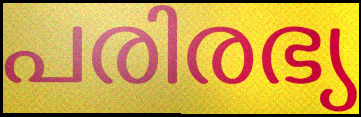
പരിരഭ്യ